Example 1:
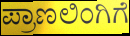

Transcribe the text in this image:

ಪ್ರಾಣಲಿಂಗಿಗೆ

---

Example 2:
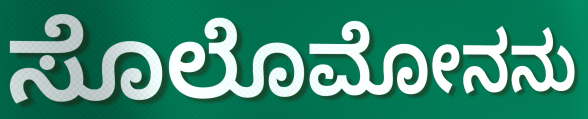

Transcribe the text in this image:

ಸೊಲೊಮೋನನು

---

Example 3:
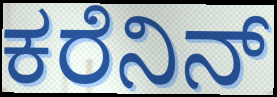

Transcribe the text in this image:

ಕರೆನಿನ್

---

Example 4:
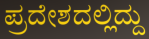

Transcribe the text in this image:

ಪ್ರದೇಶದಲ್ಲಿದ್ದು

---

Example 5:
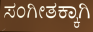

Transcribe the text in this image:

ಸಂಗೀತಕ್ಕಾಗಿ